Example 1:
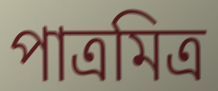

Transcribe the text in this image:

পাত্রমিত্র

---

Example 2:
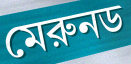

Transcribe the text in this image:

মেরুনড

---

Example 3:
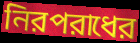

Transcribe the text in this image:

নিরপরাধের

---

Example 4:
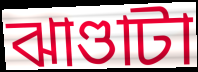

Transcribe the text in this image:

ঝাণ্ডাটা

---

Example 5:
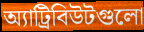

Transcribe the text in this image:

অ্যাট্রিবিউটগুলো